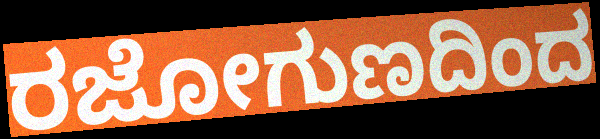
ರಜೋಗುಣದಿಂದ